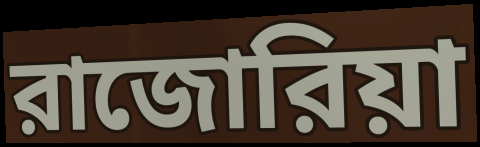
রাজোরিয়া